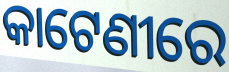
କାଟେଣୀରେ